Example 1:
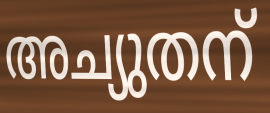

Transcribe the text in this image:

അച്യുതന്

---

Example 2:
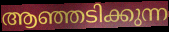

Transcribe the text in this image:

ആഞ്ഞടിക്കുന്ന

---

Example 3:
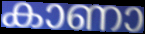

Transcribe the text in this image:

കാണാ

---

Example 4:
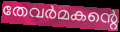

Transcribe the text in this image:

തേവർമകന്റെ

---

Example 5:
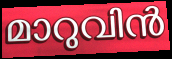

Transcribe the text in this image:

മാറുവിൻ